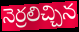
నెర్రలిచ్చిన